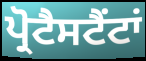
ਪ੍ਰੋਟੈਸਟੈਂਟਾਂ